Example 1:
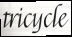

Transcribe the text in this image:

tricycle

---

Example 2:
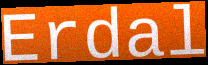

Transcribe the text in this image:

Erdal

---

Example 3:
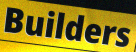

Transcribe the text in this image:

Builders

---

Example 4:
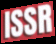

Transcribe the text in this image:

ISSR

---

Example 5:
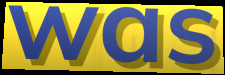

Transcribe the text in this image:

was